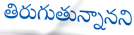
తిరుగుతున్నానని